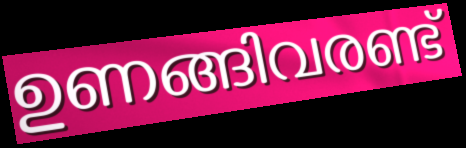
ഉണങ്ങിവരണ്ട്